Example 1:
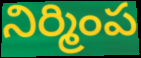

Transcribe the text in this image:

నిర్మింప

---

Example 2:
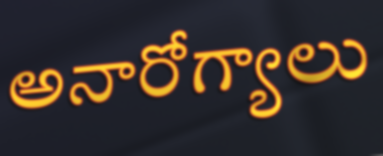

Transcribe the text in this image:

అనారోగ్యాలు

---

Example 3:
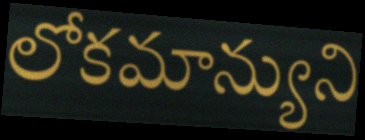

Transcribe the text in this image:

లోకమాన్యుని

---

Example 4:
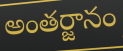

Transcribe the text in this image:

అంతర్జానం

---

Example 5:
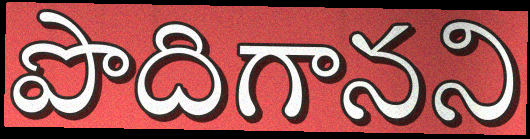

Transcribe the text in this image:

పొదిగానని